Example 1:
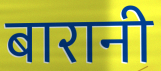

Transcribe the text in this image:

बारानी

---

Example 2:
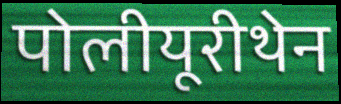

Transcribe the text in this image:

पोलीयूरीथेन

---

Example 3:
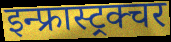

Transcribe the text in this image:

इन्फ्रास्ट्रक्चर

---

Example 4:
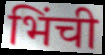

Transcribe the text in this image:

भिंची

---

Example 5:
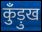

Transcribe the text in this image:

कुँड़ुख